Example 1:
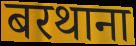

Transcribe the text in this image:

बरथाना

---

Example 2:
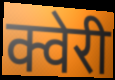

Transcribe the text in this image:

क्वेरी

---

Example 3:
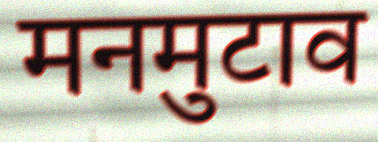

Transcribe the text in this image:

मनमुटाव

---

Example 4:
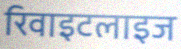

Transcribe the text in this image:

रिवाइटलाइज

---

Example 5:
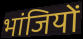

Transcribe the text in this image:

भांजियों